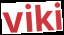
viki